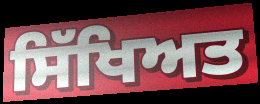
ਸਿੱਖਿਅਤ